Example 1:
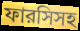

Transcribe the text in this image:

ফারসিসহ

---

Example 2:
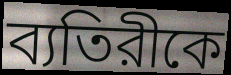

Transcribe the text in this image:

ব্যতিরীকে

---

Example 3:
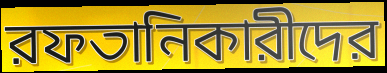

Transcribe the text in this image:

রফতানিকারীদের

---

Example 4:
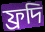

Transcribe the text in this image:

ফ্রদি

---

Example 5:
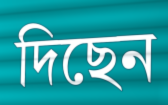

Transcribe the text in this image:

দিছেন